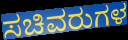
ಸಚಿವರುಗಳ